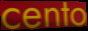
cento